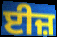
ਈਜ਼